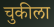
चुकीला